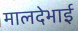
मालदेभाई